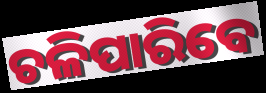
ଚଳିପାରିବେ